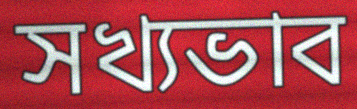
সখ্যভাব